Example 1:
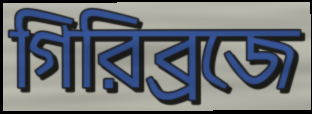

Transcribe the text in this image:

গিরিব্রজে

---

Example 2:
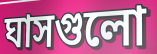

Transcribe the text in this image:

ঘাসগুলো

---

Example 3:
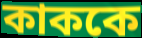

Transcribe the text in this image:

কাককে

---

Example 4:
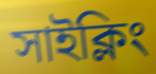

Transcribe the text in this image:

সাইক্লিং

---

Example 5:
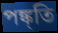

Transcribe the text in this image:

পঙ্ক্তি